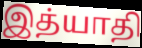
இத்யாதி